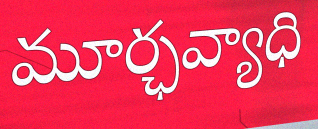
మూర్ఛవ్యాధి